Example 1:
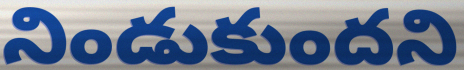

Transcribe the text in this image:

నిండుకుందని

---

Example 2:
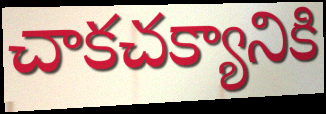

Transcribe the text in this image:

చాకచక్యానికి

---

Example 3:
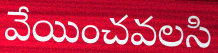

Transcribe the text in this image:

వేయించవలసి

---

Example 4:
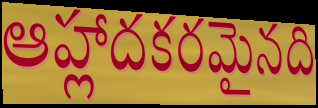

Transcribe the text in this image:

ఆహ్లాదకరమైనది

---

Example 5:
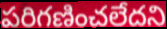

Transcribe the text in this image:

పరిగణించలేదని